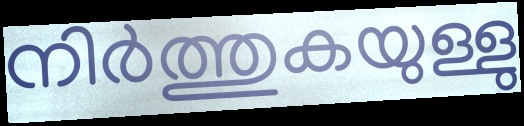
നിർത്തുകയുള്ളു